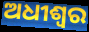
ଅଧୀଶ୍ୱର